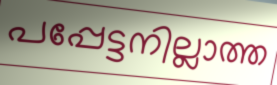
പപ്പേട്ടനില്ലാത്ത